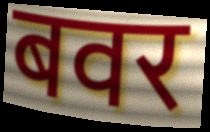
बवर